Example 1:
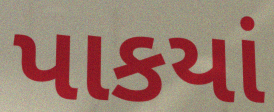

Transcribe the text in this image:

પાકયાં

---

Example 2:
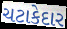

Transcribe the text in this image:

ચટાકેદાર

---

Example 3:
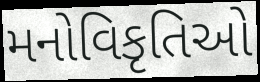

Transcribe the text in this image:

મનોવિકૃતિઓ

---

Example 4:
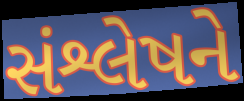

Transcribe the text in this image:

સંશ્લેષને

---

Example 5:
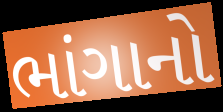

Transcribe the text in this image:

ભાંગાનો